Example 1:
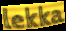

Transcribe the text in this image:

lekka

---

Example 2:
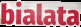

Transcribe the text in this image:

bialata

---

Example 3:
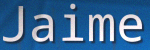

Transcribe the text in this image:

Jaime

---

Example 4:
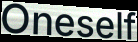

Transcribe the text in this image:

Oneself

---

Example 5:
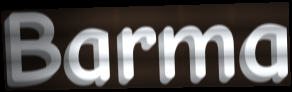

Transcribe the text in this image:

Barma